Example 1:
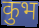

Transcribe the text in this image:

कुभ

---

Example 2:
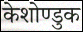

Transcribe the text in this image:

केशोण्डुक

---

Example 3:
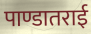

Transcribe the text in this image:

पाण्डातराई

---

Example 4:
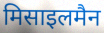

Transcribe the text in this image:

मिसाइलमैन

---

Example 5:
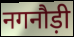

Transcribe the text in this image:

नगनौड़ी